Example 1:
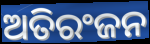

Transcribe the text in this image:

ଅତିରଂଜନ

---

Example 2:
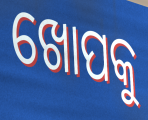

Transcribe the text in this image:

ଖୋପକୁ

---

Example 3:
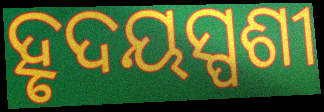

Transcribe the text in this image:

ହୃଦୟସ୍ପଶୀ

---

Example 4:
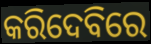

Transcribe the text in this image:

କରିଦେବିରେ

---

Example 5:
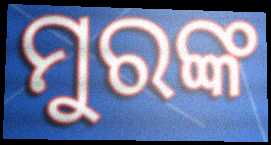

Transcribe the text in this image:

ମୁରଙ୍କ